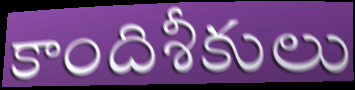
కాందిశీకులు